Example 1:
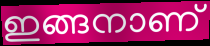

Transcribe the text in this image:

ഇങ്ങനാണ്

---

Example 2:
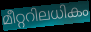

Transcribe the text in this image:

മീറ്ററിലധികം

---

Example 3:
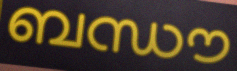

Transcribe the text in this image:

ബന്ധൗ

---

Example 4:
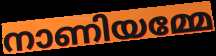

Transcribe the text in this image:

നാണിയമ്മേ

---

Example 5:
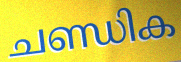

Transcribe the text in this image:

ചണ്ഡിക